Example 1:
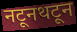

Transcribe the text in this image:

नटूनथटून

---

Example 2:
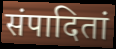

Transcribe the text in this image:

संपादितां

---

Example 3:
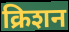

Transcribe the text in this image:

क्रिशन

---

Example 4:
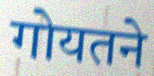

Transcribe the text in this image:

गोयतने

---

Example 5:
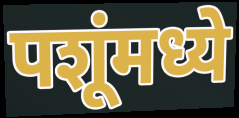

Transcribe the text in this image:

पशूंमध्ये